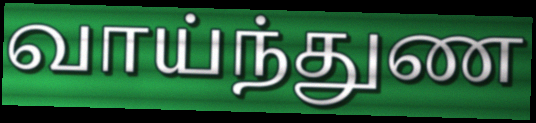
வாய்ந்துண